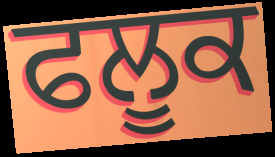
ਫਲੂਕ